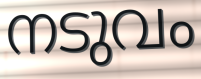
നടുവം